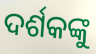
ଦର୍ଶକଙ୍କୁ